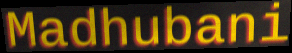
Madhubani